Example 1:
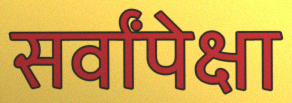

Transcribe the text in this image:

सर्वांपेक्षा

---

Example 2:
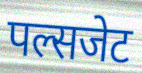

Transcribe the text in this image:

पल्सजेट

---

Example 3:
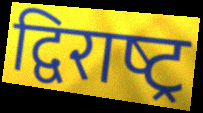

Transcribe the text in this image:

द्विराष्ट्र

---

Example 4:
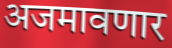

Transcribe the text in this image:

अजमावणार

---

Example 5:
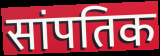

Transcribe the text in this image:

सांपतिक